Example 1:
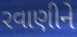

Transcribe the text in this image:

રવાણીને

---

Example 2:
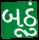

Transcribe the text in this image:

બૂઠું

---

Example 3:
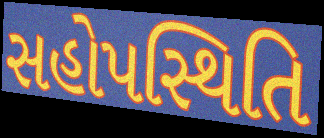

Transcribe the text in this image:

સહોપસ્થિતિ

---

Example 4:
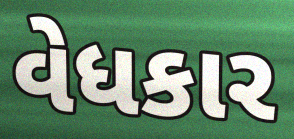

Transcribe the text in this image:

વેધકાર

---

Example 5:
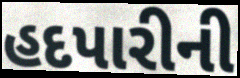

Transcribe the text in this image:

હદપારીની